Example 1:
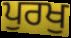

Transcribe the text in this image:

ਪੁਰਖੁ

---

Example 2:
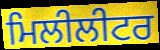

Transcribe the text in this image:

ਮਿਲੀਲੀਟਰ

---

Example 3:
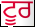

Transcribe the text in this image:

ਟੂਰ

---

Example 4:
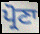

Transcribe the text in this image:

ਪ੍ਰੋਣਾ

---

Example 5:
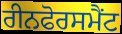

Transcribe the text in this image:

ਰੀਨਫੋਰਸਮੈਂਟ